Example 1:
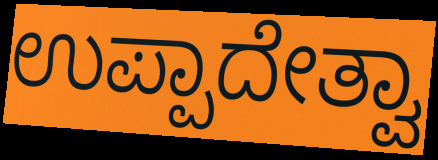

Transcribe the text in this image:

ಉಪ್ಪಾದೇತ್ವಾ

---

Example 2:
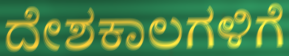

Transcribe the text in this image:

ದೇಶಕಾಲಗಳಿಗೆ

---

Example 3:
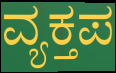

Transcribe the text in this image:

ವ್ಯಕ್ತಪ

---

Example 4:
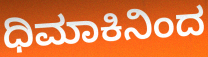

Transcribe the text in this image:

ಧಿಮಾಕಿನಿಂದ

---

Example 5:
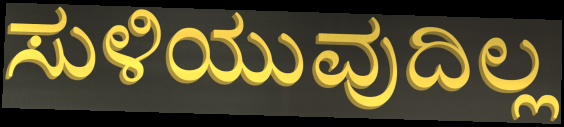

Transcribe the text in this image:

ಸುಳಿಯುವುದಿಲ್ಲ